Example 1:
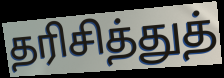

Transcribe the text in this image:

தரிசித்துத்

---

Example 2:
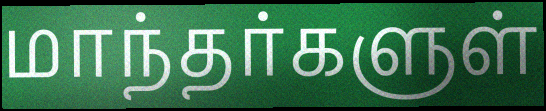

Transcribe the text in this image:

மாந்தர்களுள்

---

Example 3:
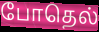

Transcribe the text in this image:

போதெல்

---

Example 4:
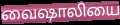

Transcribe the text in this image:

வைஷாலியை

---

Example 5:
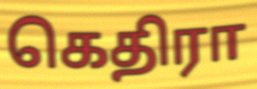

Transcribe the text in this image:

கெதிரா